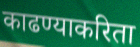
काढण्याकरिता